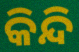
କିନ୍ଦି